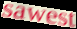
sawest